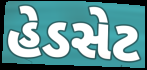
હેડસેટ